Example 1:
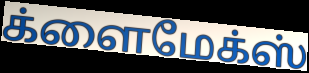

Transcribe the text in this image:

க்ளைமேக்ஸ்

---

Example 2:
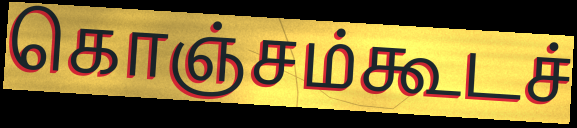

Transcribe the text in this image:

கொஞ்சம்கூடச்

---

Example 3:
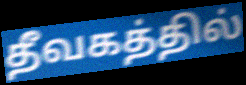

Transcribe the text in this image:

தீவகத்தில்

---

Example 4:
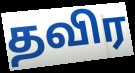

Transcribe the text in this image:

தவிர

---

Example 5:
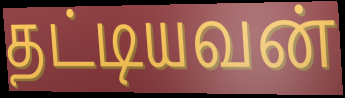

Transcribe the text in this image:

தட்டியவன்